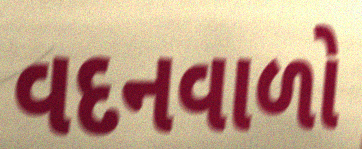
વદનવાળો